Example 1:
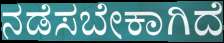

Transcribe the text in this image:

ನಡೆಸಬೇಕಾಗಿದೆ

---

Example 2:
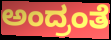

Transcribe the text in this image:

ಅಂದ್ರಂತೆ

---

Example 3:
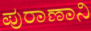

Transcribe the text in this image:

ಪುರಾಣಾನಿ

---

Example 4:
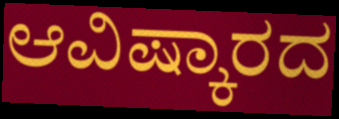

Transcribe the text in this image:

ಆವಿಷ್ಕಾರದ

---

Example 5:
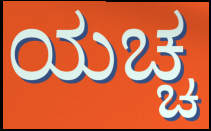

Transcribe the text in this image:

ಯಚ್ಚ